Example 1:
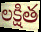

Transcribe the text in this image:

లక్షిత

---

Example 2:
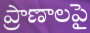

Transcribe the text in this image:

ప్రాణాలపై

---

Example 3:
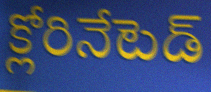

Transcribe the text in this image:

క్లోరినేటెడ్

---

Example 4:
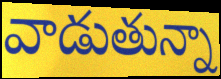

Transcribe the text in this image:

వాడుతున్నా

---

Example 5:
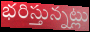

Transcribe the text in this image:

భరిస్తున్నట్లు